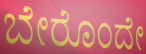
ಬೇರೊಂದೇ